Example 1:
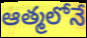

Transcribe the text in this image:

ఆత్మలోనే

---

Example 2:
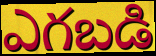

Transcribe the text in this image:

ఎగబడి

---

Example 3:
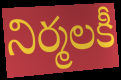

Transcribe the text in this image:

నిర్మలకీ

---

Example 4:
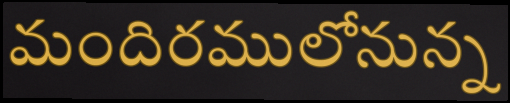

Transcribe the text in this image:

మందిరములోనున్న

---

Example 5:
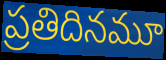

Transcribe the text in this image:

ప్రతిదినమూ